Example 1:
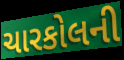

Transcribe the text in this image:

ચારકોલની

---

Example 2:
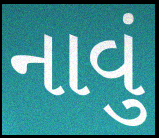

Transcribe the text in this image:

નાવું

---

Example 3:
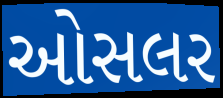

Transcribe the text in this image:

ઓસલર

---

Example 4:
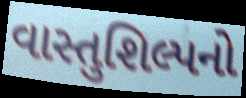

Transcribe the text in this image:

વાસ્તુશિલ્પનો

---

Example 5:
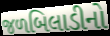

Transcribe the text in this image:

જળબિલાડીનો